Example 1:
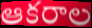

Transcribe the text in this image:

ఆకరాల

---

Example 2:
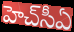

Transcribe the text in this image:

హెచ్‌సీఏ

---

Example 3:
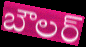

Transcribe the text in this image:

బౌలర్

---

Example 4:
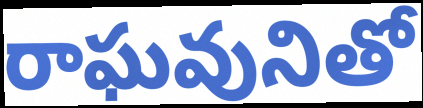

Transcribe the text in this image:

రాఘవునితో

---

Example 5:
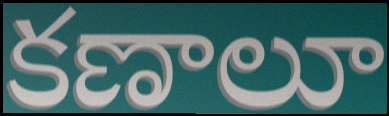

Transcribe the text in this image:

కణాలూ